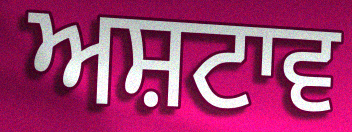
ਅਸ਼ਟਾਵ